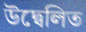
উদ্বেলিত